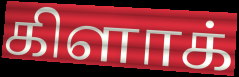
கிளாக்